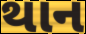
થાન